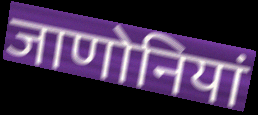
जाणोनियां